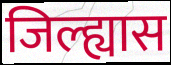
जिल्ह्यास